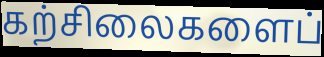
கற்சிலைகளைப்